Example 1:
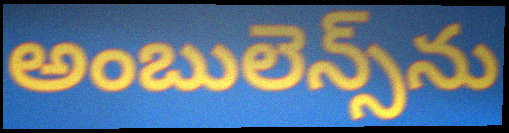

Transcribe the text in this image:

అంబులెన్స్‌ను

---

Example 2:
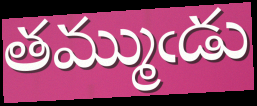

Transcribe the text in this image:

తమ్ముఁడు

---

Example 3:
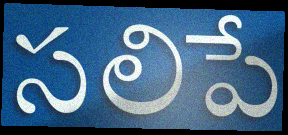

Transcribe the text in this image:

సలిపే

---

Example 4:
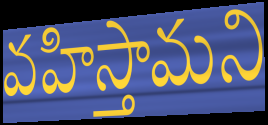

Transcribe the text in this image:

వహిస్తామని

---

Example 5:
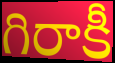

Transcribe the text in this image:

గిరాకీ